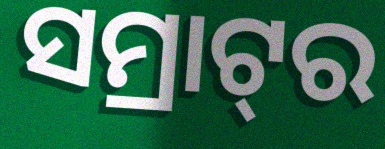
ସମ୍ରାଟ୍‌ର